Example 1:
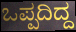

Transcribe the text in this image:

ಒಪ್ಪದಿದ್ದ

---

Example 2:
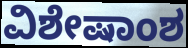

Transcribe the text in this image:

ವಿಶೇಷಾಂಶ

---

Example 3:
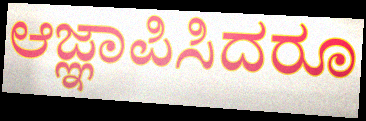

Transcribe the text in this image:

ಆಜ್ಞಾಪಿಸಿದರೂ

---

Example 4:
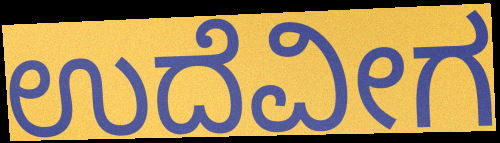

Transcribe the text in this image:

ಉದೆವೀಗ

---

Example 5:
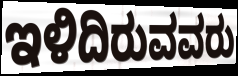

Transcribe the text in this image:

ಇಳಿದಿರುವವರು